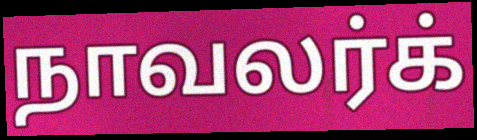
நாவலர்க்